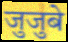
जुजुबे